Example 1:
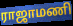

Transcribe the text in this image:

ராஜாமணி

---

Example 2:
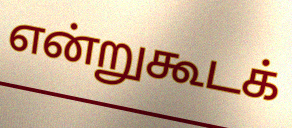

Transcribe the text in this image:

என்றுகூடக்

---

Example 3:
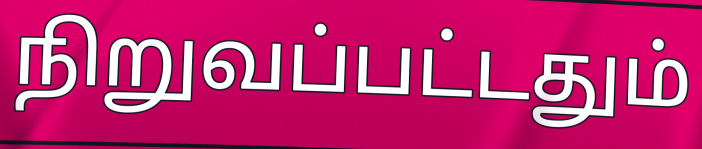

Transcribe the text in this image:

நிறுவப்பட்டதும்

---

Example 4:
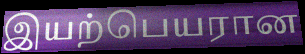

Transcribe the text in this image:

இயற்பெயரான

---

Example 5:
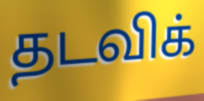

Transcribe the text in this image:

தடவிக்